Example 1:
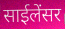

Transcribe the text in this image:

साईलेंसर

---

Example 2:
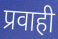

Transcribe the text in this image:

प्रवाही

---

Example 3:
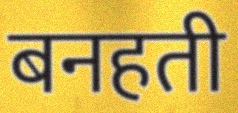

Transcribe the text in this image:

बनहती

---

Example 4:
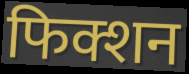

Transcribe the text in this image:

फिक्‍शन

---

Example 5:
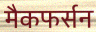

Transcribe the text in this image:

मैकफर्सन